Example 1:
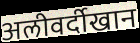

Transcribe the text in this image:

अलीवर्दीखान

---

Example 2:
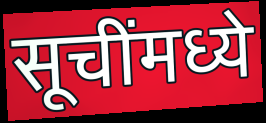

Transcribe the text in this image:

सूचींमध्ये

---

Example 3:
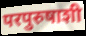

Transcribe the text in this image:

परपुरुषाशी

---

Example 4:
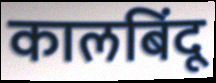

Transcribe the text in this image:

कालबिंदू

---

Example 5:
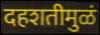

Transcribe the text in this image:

दहशतीमुळं